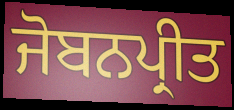
ਜੋਬਨਪ੍ਰੀਤ